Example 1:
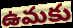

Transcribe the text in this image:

ఉమకు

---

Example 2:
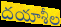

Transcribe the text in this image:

దయాశీల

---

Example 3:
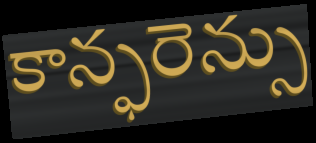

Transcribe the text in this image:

కాన్ఫరెన్సు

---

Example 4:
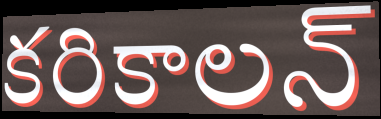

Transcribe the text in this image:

కరికాలన్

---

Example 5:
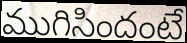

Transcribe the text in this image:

ముగిసిందంటే